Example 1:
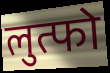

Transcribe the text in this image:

लुत्फो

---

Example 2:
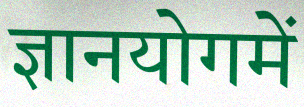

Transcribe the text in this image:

ज्ञानयोगमें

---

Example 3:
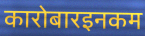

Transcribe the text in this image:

कारोबारइनकम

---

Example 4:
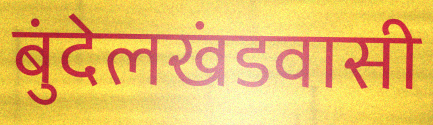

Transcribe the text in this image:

बुंदेलखंडवासी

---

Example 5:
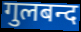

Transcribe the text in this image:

गुलबन्द